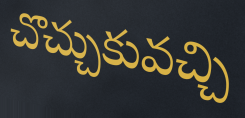
చొచ్చుకువచ్చి